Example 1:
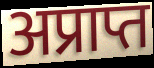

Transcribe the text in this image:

अप्राप्त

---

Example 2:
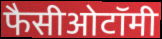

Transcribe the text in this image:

फैसीओटॉमी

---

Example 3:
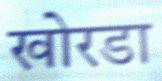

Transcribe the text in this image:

खोरडा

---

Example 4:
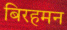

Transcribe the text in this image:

बिरहमन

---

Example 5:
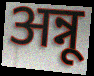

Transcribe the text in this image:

अन्नू